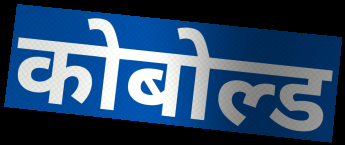
कोबोल्ड